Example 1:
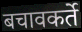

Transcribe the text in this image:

बचावकर्ते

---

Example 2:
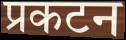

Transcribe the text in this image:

प्रकटन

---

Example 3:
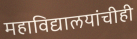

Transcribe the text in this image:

महाविद्यालयांचीही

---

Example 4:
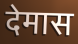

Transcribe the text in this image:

देमास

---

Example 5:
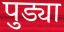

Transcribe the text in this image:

पुड्या